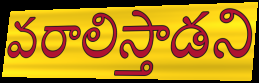
వరాలిస్తాడని